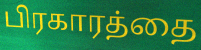
பிரகாரத்தை